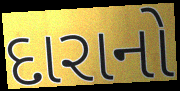
દારાનો